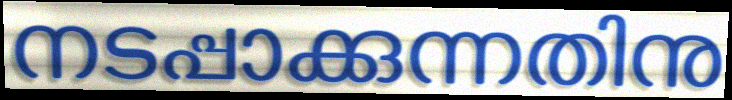
നടപ്പാക്കുന്നതിനു